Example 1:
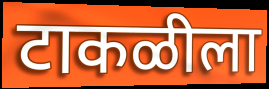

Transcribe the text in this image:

टाकळीला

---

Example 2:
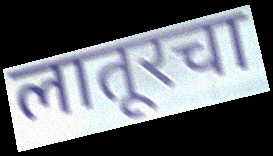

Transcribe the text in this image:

लातूरचा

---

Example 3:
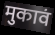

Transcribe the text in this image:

मुकावं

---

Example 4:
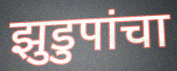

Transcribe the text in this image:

झुडुपांचा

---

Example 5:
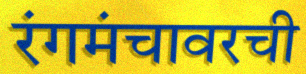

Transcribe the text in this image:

रंगमंचावरची